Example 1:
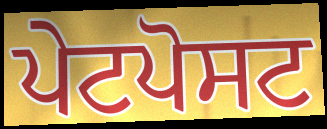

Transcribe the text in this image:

ਪੇਟਪੋਸਟ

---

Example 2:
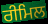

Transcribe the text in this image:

ਰੀਮਿਲ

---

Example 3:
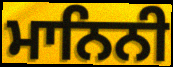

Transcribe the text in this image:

ਮਾਨਿਨੀ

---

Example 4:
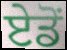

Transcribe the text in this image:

ਏਡੋਂ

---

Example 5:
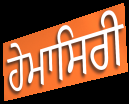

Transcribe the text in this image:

ਹੇਮਾਸਿਰੀ